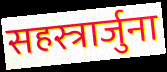
सहस्त्रार्जुना